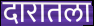
दारातला